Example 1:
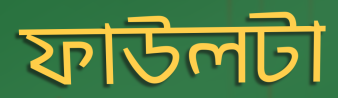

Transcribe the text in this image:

ফাউলটা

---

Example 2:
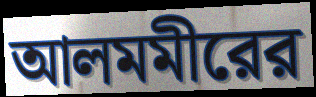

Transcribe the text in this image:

আলমমীরের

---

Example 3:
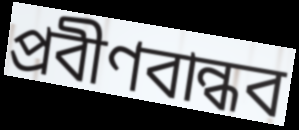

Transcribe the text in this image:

প্রবীণবান্ধব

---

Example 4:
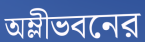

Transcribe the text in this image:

অম্লীভবনের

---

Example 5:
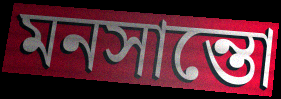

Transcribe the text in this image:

মনসান্তো